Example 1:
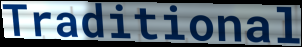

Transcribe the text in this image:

Traditional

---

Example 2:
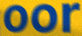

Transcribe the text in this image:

oor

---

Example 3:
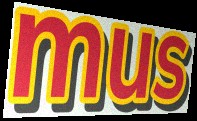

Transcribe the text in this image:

mus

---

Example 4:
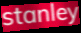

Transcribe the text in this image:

stanley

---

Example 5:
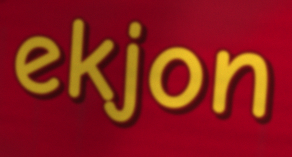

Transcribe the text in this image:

ekjon